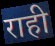
राही